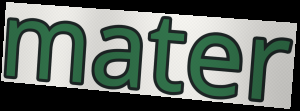
mater